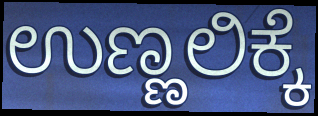
ಉಣ್ಣಲಿಕ್ಕೆ